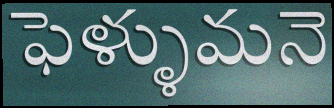
ఫెళ్ళుమనె